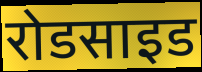
रोडसाइड